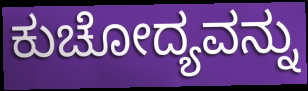
ಕುಚೋದ್ಯವನ್ನು